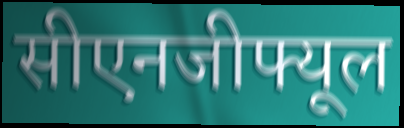
सीएनजीफ्यूल